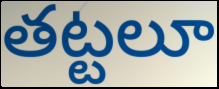
తట్టలూ